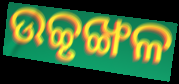
ଉଚ୍ଚୃଙ୍ଖଳ